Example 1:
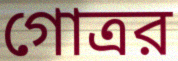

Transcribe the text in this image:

গোত্রর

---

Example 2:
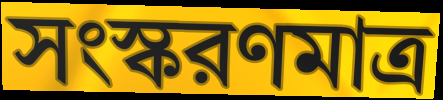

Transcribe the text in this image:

সংস্করণমাত্র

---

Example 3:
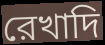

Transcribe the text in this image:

রেখাদি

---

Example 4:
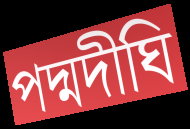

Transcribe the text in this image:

পদ্মদীঘি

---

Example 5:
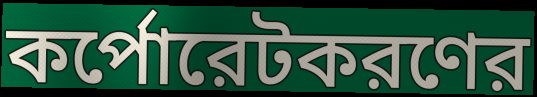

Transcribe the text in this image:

কর্পোরেটকরণের